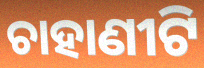
ଚାହାଣୀଟି